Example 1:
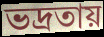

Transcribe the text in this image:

ভদ্রতায়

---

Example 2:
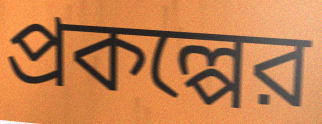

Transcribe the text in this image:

প্রকল্পের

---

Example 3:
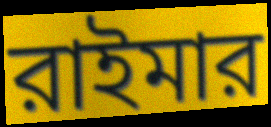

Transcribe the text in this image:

রাইমার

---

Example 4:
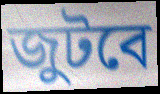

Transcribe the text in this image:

জুটবে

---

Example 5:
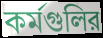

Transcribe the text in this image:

কর্মগুলির